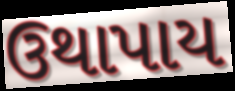
ઉથાપાય